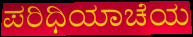
ಪರಿಧಿಯಾಚೆಯ